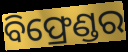
ବିଫ୍ରେଣ୍ଡର